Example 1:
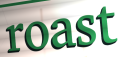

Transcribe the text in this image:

roast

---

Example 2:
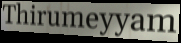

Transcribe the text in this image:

Thirumeyyam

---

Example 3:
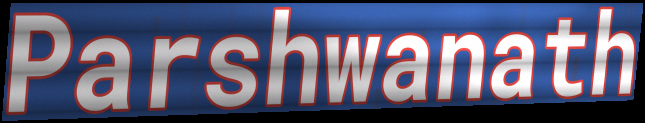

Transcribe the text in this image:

Parshwanath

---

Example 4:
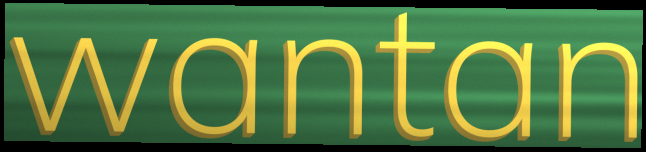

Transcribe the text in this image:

wantan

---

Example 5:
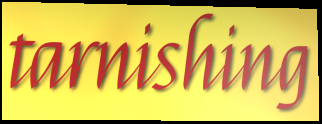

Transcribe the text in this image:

tarnishing